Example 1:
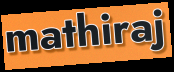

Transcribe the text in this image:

mathiraj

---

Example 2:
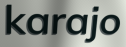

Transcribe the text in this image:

karajo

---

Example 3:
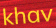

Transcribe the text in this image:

khav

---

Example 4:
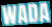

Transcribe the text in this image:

WADA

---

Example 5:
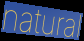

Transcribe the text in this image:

natural